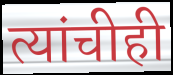
त्यांचीही